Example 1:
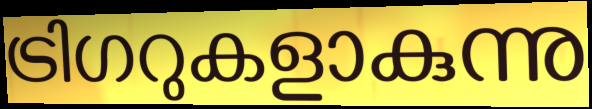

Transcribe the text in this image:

ട്രിഗറുകളാകുന്നു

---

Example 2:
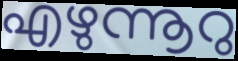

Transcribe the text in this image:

എഴുന്നൂറു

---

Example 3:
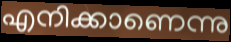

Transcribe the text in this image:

എനിക്കാണെന്നു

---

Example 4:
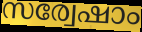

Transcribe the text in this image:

സര്വേഷാം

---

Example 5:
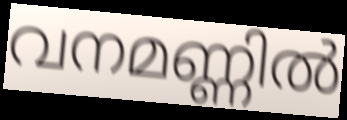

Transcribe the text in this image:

വനമണ്ണിൽ